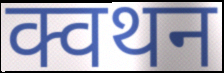
क्वथन